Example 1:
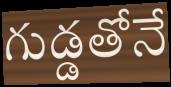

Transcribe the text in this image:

గుడ్డతోనే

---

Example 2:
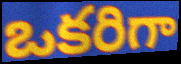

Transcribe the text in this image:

ఒకరిగా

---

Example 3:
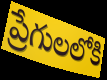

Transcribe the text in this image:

ప్రేగులలోకి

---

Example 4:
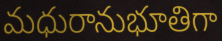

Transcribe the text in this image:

మధురానుభూతిగా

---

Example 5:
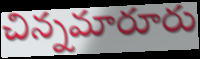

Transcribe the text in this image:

చిన్నమారూరు